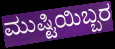
ಮುಷ್ಟಿಯಿಬ್ಬರ